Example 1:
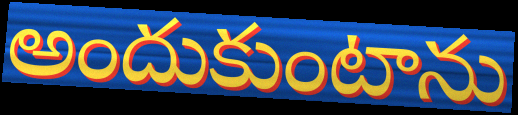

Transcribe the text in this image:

అందుకుంటాను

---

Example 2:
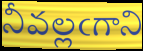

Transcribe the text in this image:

నీవల్లఁగాని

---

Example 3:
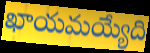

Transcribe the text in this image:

ఖాయమయ్యేది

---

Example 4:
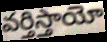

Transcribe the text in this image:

వర్తిస్తాయో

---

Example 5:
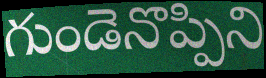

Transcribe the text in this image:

గుండెనొప్పిని